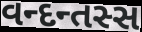
વન્દન્તસ્સ